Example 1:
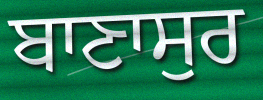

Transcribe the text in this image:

ਬਾਣਾਸੁਰ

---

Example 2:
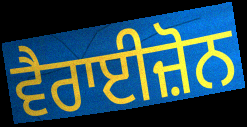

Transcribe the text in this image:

ਵੈਰਾਈਜ਼ੋਨ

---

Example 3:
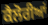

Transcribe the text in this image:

ਕੈਲੋਰੀਆਂ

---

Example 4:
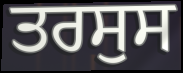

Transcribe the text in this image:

ਤਰਸੁਸ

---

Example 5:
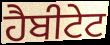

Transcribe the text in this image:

ਹੈਬੀਟੇਟ